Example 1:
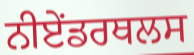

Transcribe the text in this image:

ਨੀਏਂਡਰਥਲਸ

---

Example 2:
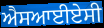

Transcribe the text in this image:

ਐਸਆਈਏਸੀ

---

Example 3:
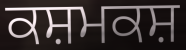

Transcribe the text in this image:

ਕਸ਼ਮਕਸ਼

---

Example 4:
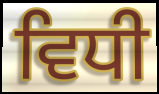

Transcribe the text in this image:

ਵਿਧੀ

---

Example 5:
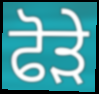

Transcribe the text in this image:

ਫੋੜੇ